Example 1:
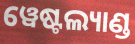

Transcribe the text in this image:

ୱେଷ୍ଟଲ୍ୟାଣ୍ଡ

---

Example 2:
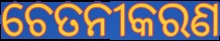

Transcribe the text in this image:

ଚେତନୀକରଣ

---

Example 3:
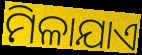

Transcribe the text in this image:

ମିଳାଯାଏ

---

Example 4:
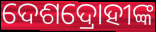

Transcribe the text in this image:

ଦେଶଦ୍ରୋହୀଙ୍କ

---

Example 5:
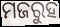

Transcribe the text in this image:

ମଜରୁହ